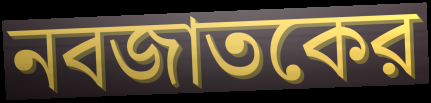
নবজাতকের